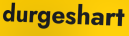
durgeshart